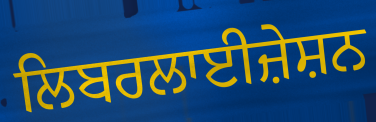
ਲਿਬਰਲਾਈਜ਼ੇਸ਼ਨ